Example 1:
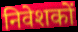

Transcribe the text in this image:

निवेशकों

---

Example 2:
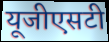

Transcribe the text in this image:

यूजीएसटी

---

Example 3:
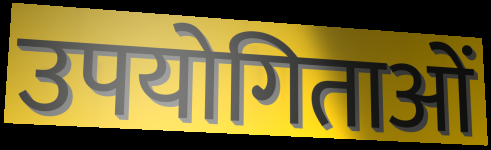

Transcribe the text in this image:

उपयोगिताओं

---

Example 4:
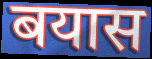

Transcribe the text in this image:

बयास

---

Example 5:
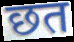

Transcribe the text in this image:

छत